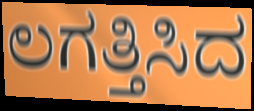
ಲಗತ್ತಿಸಿದ